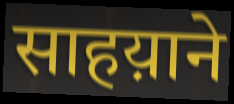
साहय़ाने